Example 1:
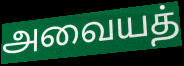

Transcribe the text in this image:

அவையத்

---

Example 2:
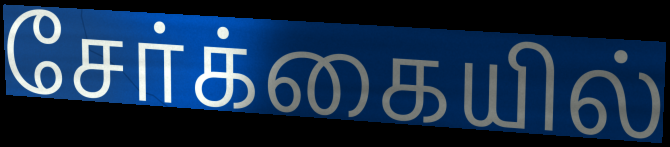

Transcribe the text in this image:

சேர்க்கையில்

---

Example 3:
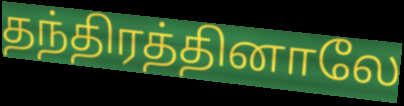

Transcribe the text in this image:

தந்திரத்தினாலே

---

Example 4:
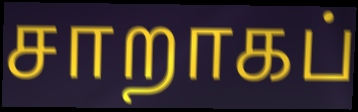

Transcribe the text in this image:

சாறாகப்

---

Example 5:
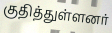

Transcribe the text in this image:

குதித்துள்ளனர்